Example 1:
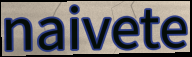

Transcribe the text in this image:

naivete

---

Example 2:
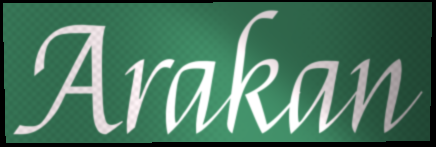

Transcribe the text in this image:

Arakan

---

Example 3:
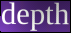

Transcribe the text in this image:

depth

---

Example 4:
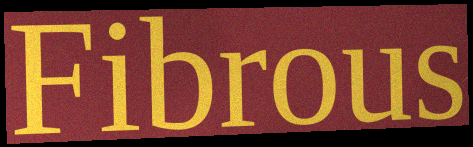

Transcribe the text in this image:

Fibrous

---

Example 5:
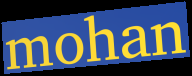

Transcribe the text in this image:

mohan